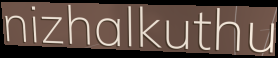
nizhalkuthu